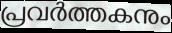
പ്രവർത്തകനും